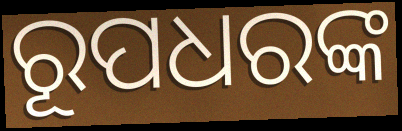
ରୂପଧରଙ୍କ